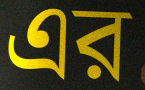
এর